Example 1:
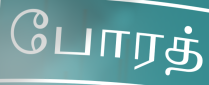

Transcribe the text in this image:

போரத்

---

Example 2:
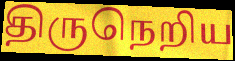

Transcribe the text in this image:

திருநெறிய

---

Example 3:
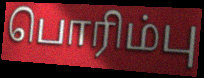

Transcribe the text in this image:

பொரிம்பு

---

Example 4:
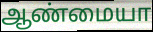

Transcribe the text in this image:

ஆண்மையா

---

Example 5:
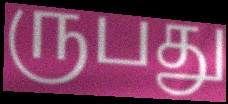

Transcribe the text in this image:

ருபது